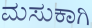
ಮಸುಕಾಗಿ